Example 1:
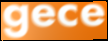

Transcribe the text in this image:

gece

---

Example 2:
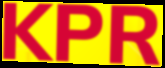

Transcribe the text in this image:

KPR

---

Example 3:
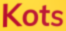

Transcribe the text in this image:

Kots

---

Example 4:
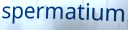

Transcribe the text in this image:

spermatium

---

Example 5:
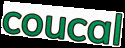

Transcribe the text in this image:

coucal